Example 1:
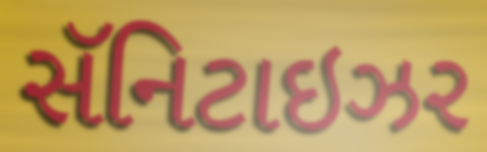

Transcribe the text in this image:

સૅનિટાઇઝર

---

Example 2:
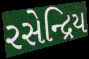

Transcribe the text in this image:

રસેન્દ્રિય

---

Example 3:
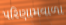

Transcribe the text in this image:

પરિણામવાળા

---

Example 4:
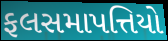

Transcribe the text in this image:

ફલસમાપત્તિયો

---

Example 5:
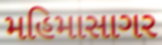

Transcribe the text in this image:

મહિમાસાગર